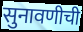
सुनावणीची